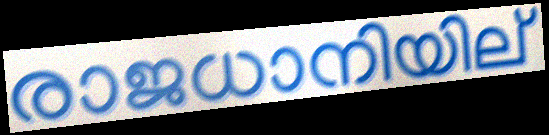
രാജധാനിയില്